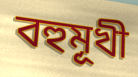
বহুমূখী